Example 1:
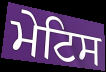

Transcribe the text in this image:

ਮੇਟਿਸ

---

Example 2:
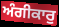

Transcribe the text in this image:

ਅੰਗੀਕਾਰੁ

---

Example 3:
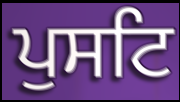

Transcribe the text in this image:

ਪੁਸਟਿ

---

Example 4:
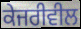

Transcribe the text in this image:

ਕੇਜਰੀਵੀਲ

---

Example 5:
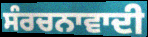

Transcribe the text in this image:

ਸੰਰਚਨਾਵਾਦੀ